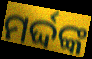
ମର୍ଦ୍ଦଙ୍କ